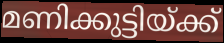
മണിക്കുട്ടിയ്ക്ക്